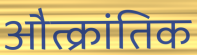
औत्क्रांतिक